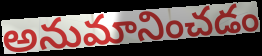
అనుమానించడం